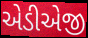
એડીએજી